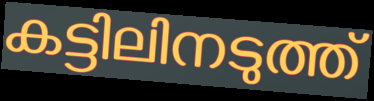
കട്ടിലിനടുത്ത്